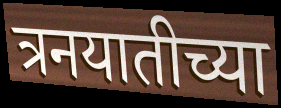
त्रनयातीच्या